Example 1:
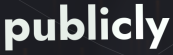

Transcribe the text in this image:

publicly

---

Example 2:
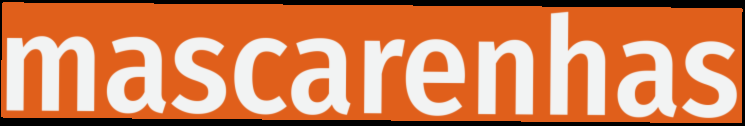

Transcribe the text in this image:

mascarenhas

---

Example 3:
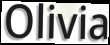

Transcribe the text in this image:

Olivia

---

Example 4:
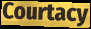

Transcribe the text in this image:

Courtacy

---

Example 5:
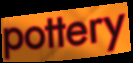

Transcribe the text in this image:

pottery